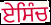
ਏਸਿੰਚ